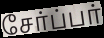
சேர்ப்பர்